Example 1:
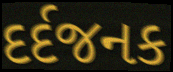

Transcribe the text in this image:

દર્દજનક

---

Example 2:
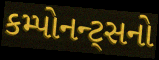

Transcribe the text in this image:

કમ્પોનન્ટ્સનો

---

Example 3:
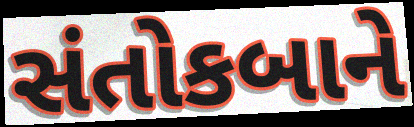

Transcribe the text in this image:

સંતોકબાને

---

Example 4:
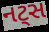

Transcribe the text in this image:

નટ્સ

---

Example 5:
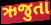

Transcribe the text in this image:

ઋજુતા